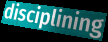
disciplining